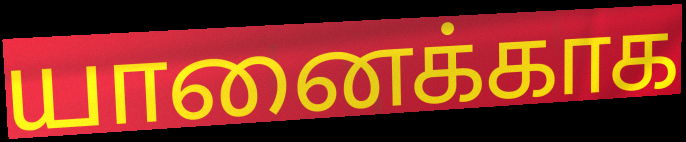
யானைக்காக